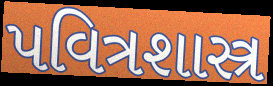
પવિત્રશાસ્ત્ર